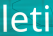
leti